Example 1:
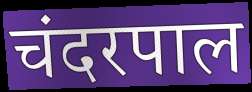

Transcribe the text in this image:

चंदरपाल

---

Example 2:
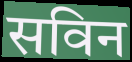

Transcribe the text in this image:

सविन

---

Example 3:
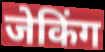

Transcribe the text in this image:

जेकिंग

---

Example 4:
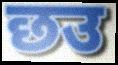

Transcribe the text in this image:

छउ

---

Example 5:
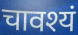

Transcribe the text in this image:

चावश्यं